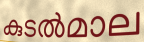
കുടൽമാല